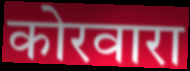
कोरवारा